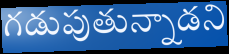
గడుపుతున్నాడని